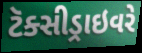
ટૅક્સીડ્રાઇવરે